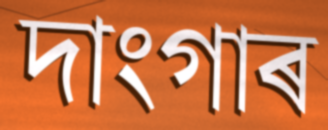
দাংগাৰ